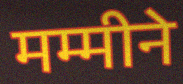
मम्मीने